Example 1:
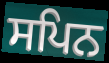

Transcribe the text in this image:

ਸਪਿਨ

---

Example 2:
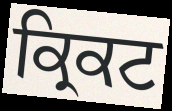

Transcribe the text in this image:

ਕ੍ਰਿਕਟ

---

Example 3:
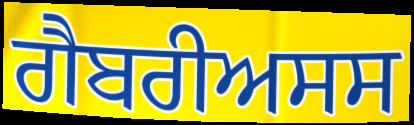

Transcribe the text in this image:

ਗੈਬਰੀਅਸਸ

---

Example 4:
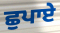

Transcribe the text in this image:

ਛੁਪਾਏ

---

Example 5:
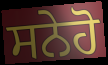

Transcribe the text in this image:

ਸਨੇਹੋ